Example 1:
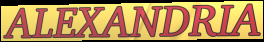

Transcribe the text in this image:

ALEXANDRIA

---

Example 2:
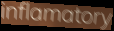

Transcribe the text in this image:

inflamatory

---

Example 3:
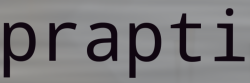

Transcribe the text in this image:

prapti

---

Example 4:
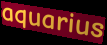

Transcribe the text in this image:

aquarius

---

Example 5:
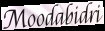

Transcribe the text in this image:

Moodabidri